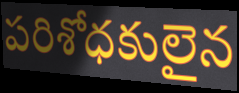
పరిశోధకులైన